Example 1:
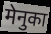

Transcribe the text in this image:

मेनुका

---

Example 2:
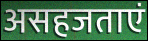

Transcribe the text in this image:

असहजताएं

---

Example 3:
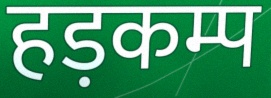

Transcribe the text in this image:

हड़कम्प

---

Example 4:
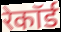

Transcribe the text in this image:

रेकॉर्ड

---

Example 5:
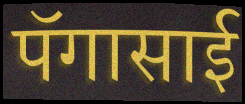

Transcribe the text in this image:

पॅगासाई